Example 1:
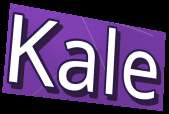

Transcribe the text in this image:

Kale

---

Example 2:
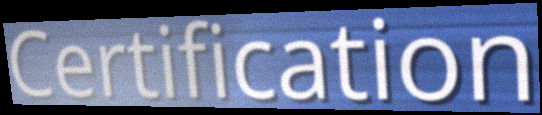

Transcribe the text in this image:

Certification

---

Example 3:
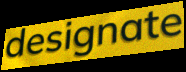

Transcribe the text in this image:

designate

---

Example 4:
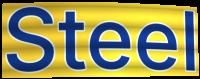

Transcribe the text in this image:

Steel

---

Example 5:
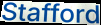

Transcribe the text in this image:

Stafford